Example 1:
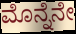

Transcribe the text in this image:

ಮೊನ್ನೆನೇ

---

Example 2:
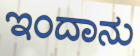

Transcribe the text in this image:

ಇಂದಾನು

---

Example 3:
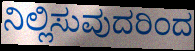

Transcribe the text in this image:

ನಿಲ್ಲಿಸುವುದರಿಂದ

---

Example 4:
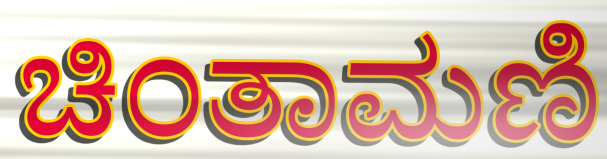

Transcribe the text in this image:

ಚಿಂತಾಮಣಿ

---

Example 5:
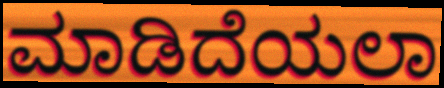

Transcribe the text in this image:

ಮಾಡಿದೆಯಲಾ